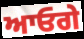
ਆਓਗੇ